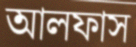
আলফাস